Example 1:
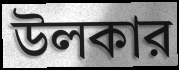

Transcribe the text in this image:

উলকার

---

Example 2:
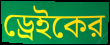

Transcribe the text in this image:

ড্রেইকের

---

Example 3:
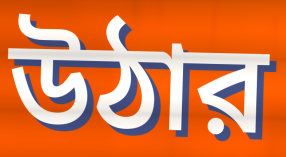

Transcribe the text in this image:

উঠার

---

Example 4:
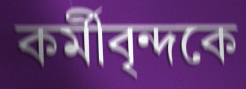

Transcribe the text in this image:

কর্মীবৃন্দকে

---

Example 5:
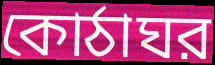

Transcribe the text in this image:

কোঠাঘর